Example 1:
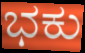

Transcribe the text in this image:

ಭಕು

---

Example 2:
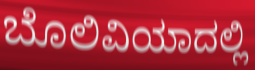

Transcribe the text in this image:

ಬೊಲಿವಿಯಾದಲ್ಲಿ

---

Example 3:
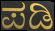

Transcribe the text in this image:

ಪಡಿ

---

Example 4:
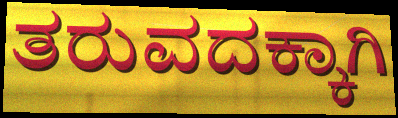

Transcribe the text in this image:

ತರುವದಕ್ಕಾಗಿ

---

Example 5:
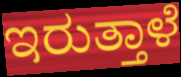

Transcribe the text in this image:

ಇರುತ್ತಾಳೆ